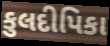
કુલદીપિકા